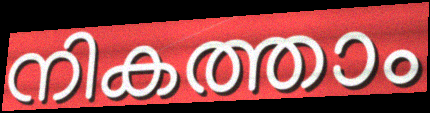
നികത്താം